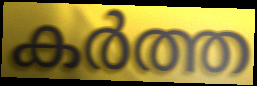
കർത്ത